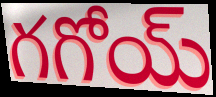
గగోయ్